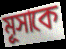
মূসাকে